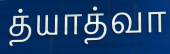
த்யாத்வா